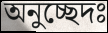
অনুচ্ছেদঃ